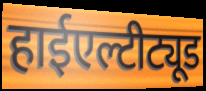
हाईएल्टीट्यूड